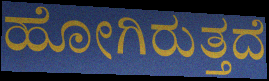
ಹೋಗಿರುತ್ತದೆ